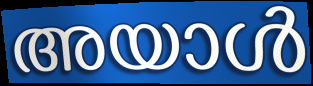
അയാൾ